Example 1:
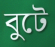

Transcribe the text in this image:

বুটে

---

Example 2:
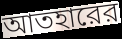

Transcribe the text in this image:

আতহারের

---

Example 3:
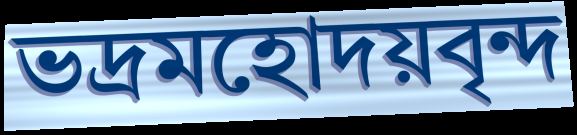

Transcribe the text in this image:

ভদ্রমহোদয়বৃন্দ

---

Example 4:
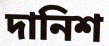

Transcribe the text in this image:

দানিশ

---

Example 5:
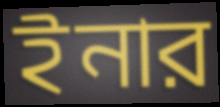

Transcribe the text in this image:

ইনার